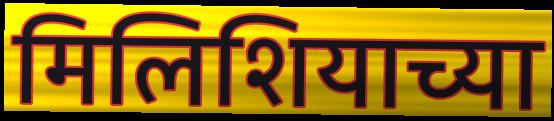
मिलिशियाच्या